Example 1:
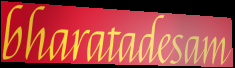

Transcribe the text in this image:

bharatadesam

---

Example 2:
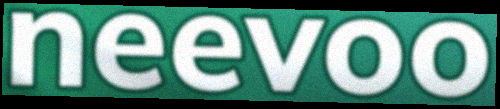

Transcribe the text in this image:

neevoo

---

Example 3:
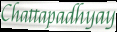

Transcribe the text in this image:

Chattapadhyay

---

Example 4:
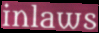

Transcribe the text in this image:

inlaws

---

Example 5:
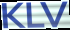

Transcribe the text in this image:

KLV